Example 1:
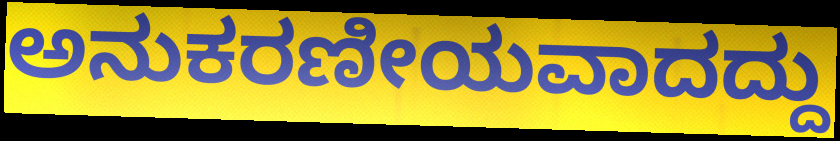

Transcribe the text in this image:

ಅನುಕರಣೀಯವಾದದ್ದು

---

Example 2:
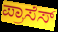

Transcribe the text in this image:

ಪ್ರಾಸೆಸ್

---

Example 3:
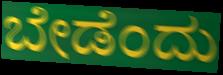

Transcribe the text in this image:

ಬೇಡೆಂದು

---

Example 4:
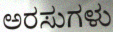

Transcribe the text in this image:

ಅರಸುಗಳು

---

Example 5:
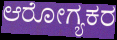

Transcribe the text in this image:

ಆರೋಗ್ಯಕರ